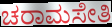
ಚರಾಮಸೇತಿ